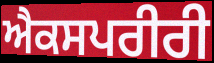
ਐਕਸਪਰੀਰੀ